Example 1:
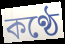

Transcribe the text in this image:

কণ্ঠে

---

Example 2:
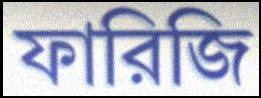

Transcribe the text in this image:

ফারিজি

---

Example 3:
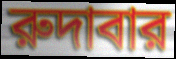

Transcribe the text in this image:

রুদাবার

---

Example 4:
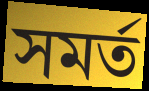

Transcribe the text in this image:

সমর্ত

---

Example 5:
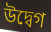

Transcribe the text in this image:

উদ্বেগ